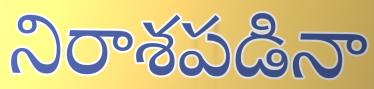
నిరాశపడినా